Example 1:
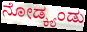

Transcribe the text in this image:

ನೋಡ್ಕ್ಯಂಡು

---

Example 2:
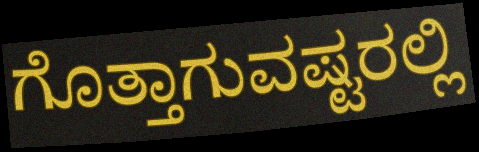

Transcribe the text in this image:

ಗೊತ್ತಾಗುವಷ್ಟರಲ್ಲಿ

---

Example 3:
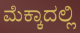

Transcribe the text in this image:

ಮೆಕ್ಕಾದಲ್ಲಿ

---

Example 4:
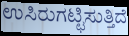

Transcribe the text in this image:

ಉಸಿರುಗಟ್ಟಿಸುತ್ತಿದೆ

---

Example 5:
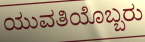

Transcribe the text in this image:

ಯುವತಿಯೊಬ್ಬರು